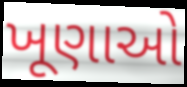
ખૂણાઓ